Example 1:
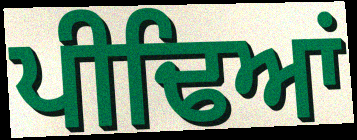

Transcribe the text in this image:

ਪੀਢਿਆਂ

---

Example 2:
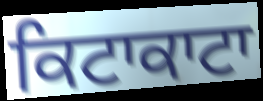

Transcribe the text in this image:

ਕਿਟਾਕਾਟਾ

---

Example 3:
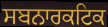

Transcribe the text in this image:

ਸਬਨਾਰਕਟਿਕ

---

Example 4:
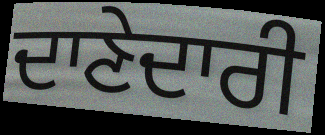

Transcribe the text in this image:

ਦਾਣੇਦਾਰੀ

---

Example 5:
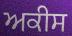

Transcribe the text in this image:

ਅਕੀਸ